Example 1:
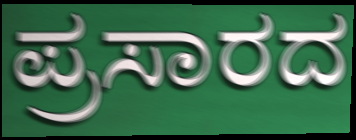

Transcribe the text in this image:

ಪ್ರಸಾರದ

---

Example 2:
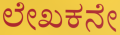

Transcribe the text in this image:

ಲೇಖಕನೇ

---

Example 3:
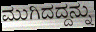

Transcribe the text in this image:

ಮುಗಿದದ್ದನ್ನು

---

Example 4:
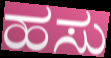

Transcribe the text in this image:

ಹಸು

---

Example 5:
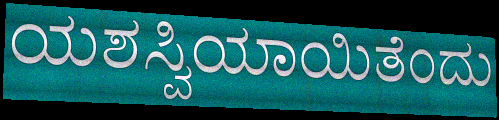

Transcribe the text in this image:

ಯಶಸ್ವಿಯಾಯಿತೆಂದು